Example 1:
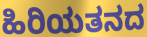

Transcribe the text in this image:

ಹಿರಿಯತನದ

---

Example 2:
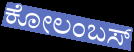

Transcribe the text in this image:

ಕೋಲಂಬಸ್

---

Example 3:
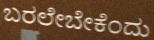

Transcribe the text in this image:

ಬರಲೇಬೇಕೆಂದು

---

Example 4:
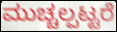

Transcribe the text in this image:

ಮುಚ್ಚಲ್ಪಟ್ಟರೆ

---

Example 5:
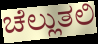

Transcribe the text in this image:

ಚೆಲ್ಲುತಲಿ